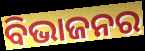
ବିଭାଜନର